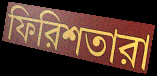
ফিরিশতারা